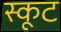
स्कूट